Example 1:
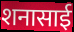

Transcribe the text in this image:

शनासाई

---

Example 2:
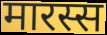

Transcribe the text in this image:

मारस्स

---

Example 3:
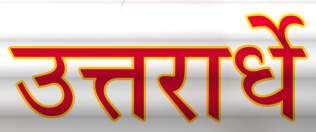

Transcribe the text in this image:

उत्तरार्धे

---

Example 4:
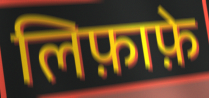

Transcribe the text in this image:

लिफ़ाफ़े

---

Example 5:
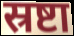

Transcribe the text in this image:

स्रष्टा